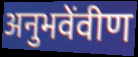
अनुभवेंवीण